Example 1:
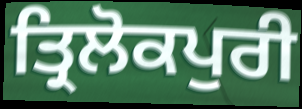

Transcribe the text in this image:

ਤ੍ਰਿਲੋਕਪੁਰੀ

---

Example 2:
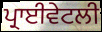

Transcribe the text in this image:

ਪ੍ਰਾਈਵੇਟਲੀ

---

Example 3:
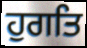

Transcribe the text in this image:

ਹੁਗਤਿ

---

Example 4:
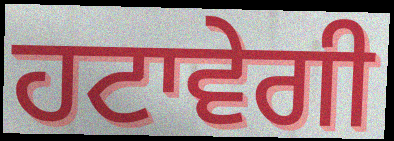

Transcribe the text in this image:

ਹਟਾਵੇਗੀ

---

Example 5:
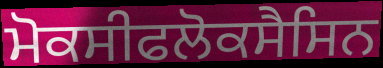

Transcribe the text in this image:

ਮੋਕਸੀਫਲੋਕਸੈਸਿਨ